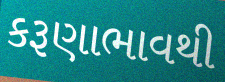
કરૂણાભાવથી